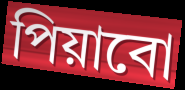
পিয়াবো